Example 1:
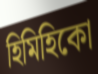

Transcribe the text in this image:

হিমিহিকো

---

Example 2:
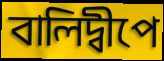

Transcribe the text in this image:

বালিদ্বীপে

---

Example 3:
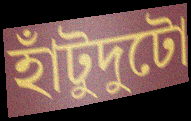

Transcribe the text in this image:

হাঁটুদুটো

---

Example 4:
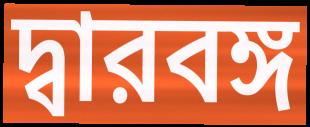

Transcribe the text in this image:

দ্বারবঙ্গ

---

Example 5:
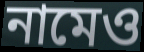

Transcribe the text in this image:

নামেও